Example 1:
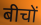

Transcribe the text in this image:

बीचों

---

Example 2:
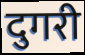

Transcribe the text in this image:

दुगरी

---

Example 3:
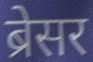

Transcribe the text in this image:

ब्रेसर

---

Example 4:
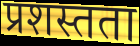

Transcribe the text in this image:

प्रशस्तता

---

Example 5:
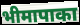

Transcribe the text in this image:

भीमापाका